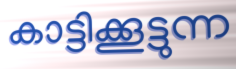
കാട്ടിക്കൂട്ടുന്ന